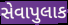
સેવાપુલાક